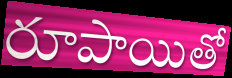
రూపాయితో